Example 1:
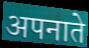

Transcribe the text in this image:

अपनाते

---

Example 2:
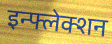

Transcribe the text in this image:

इन्फ्लेक्शन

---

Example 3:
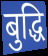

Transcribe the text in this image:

बुद्धि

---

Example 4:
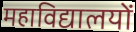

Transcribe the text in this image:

महाविद्यालयों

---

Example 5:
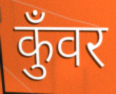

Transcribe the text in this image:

कुँवर